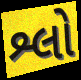
શ્લો